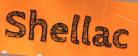
Shellac